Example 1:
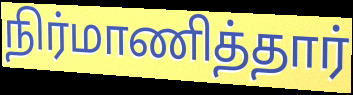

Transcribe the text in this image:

நிர்மாணித்தார்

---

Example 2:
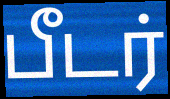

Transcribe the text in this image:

பீடர்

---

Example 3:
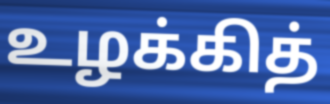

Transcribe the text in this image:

உழக்கித்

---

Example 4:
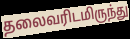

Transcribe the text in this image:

தலைவரிடமிருந்து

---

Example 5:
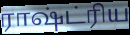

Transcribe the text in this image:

ராஷ்ட்ரிய